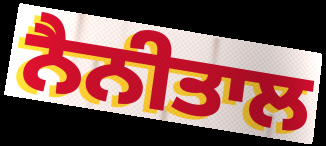
ਨੈਨੀਤਾਲ